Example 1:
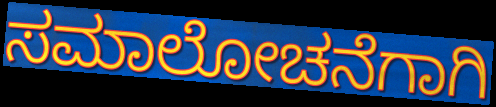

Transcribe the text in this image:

ಸಮಾಲೋಚನೆಗಾಗಿ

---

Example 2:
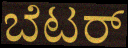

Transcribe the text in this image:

ಬೆಟರ್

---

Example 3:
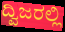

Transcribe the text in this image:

ದ್ವಿಜರಲ್ಲಿ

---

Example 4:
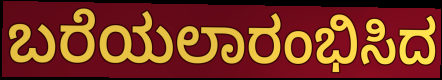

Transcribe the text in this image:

ಬರೆಯಲಾರಂಭಿಸಿದ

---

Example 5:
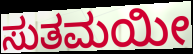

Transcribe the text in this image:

ಸುತಮಯೀ